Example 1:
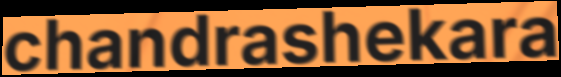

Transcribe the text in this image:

chandrashekara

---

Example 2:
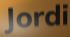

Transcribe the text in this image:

Jordi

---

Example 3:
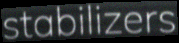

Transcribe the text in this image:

stabilizers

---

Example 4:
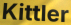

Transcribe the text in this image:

Kittler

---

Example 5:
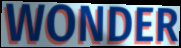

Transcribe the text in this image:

WONDER